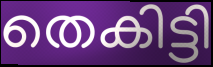
തെകിട്ടി